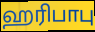
ஹரிபாபு